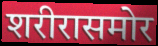
शरीरासमोर